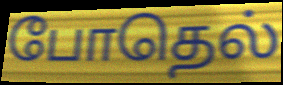
போதெல்